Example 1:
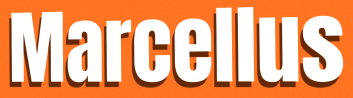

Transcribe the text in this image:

Marcellus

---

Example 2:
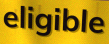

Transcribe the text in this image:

eligible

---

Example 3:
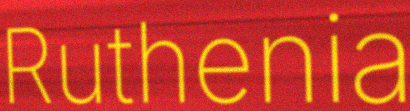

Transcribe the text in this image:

Ruthenia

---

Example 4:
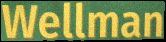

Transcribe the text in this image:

Wellman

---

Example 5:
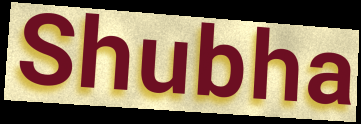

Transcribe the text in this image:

Shubha